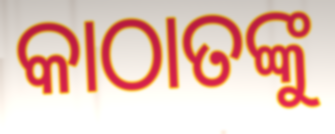
କାଠାତଙ୍କୁ